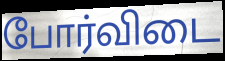
போர்விடை